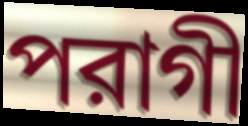
পরাগী